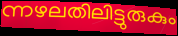
ന്നഴലതിലിട്ടുരുകും